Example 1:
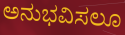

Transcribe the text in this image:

ಅನುಭವಿಸಲೂ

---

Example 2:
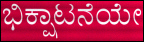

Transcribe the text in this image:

ಭಿಕ್ಷಾಟನೆಯೇ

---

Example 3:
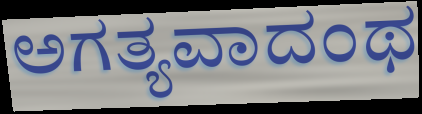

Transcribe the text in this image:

ಅಗತ್ಯವಾದಂಥ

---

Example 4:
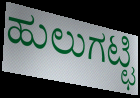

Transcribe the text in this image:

ಹುಲುಗಟ್ಟಿ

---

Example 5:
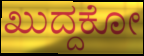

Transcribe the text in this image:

ಖುದ್ದಕೋ